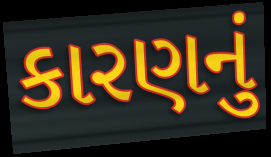
કારણનું